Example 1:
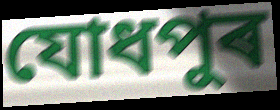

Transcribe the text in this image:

যোধপুৰ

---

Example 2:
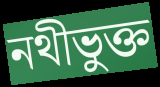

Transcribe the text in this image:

নথীভুক্ত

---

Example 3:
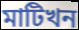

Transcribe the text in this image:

মাটিখন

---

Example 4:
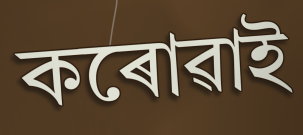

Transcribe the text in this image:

কৰোৱাই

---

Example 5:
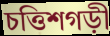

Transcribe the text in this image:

চত্তিশগড়ী